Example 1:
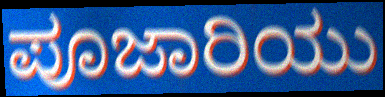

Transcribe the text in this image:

ಪೂಜಾರಿಯು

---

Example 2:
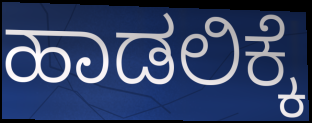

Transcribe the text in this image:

ಹಾಡಲಿಕ್ಕೆ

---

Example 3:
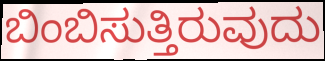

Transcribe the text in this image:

ಬಿಂಬಿಸುತ್ತಿರುವುದು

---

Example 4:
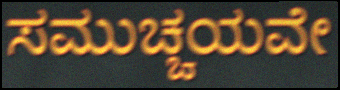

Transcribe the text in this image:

ಸಮುಚ್ಚಯವೇ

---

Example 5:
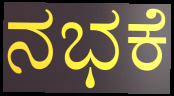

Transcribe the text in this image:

ನಭಕೆ